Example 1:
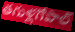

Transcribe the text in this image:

తగుళ్లగోపాల్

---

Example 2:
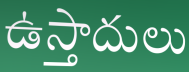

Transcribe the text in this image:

ఉస్తాదులు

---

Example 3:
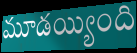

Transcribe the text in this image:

మూడయ్యింది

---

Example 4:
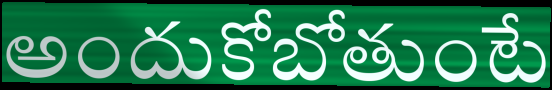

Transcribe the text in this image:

అందుకోబోతుంటే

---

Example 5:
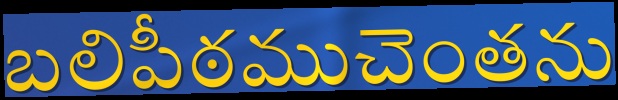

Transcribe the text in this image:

బలిపీఠముచెంతను